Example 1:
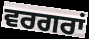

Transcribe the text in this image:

ਵਰਗਰਾਂ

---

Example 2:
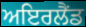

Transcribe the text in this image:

ਅਇਰਲੈਂਡ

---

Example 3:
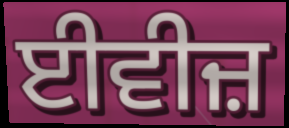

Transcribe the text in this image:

ਈਵੀਜ਼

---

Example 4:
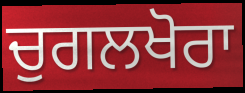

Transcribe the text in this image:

ਚੁਗਲਖੋਰਾ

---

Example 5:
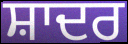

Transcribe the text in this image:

ਸ਼ਾਦਰ